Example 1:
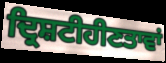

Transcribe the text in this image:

ਦ੍ਰਿਸ਼ਟੀਹੀਣਤਾਵਾਂ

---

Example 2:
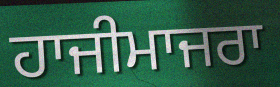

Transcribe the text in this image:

ਹਾਜੀਮਾਜਰਾ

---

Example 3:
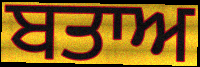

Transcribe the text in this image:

ਬਤਾਅ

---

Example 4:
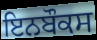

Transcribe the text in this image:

ਇਨਬੌਕਸ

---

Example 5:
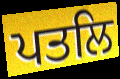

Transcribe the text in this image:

ਪਤਲਿ